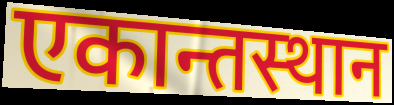
एकान्तस्थान